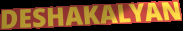
DESHAKALYAN